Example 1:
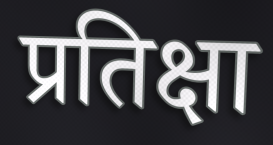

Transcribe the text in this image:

प्रतिक्षा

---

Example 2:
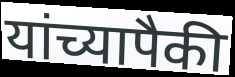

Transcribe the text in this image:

यांच्यापैकी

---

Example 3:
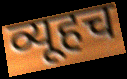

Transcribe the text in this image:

व्यूहच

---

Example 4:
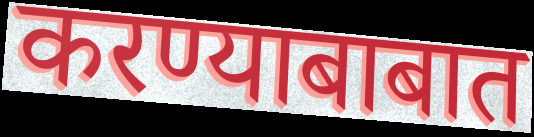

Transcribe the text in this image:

करण्याबाबात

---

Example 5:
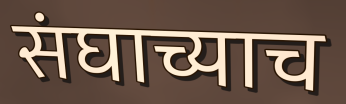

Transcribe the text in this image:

संघाच्याच